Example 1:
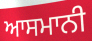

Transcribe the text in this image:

ਆਸਮਾਨੀ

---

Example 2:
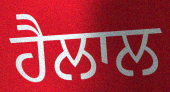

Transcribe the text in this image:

ਹੈਲਾਲ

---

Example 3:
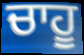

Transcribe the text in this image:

ਚਾਹੂ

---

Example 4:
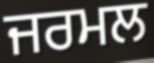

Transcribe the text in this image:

ਜਰਮਲ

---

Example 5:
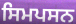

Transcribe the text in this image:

ਸਿਮਪਸਨ